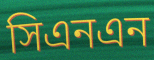
সিএনএন